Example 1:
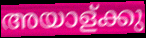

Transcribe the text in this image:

അയാള്ക്കു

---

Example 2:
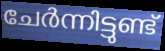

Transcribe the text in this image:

ചേർന്നിട്ടുണ്ട്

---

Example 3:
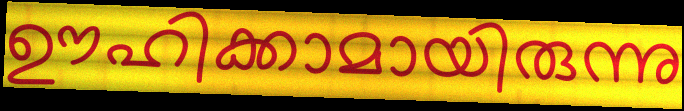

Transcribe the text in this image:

ഊഹിക്കാമായിരുന്നു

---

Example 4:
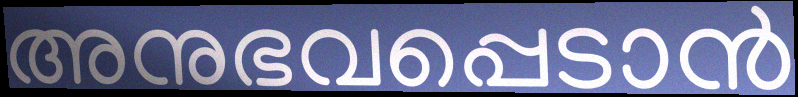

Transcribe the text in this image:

അനുഭവപ്പെടാൻ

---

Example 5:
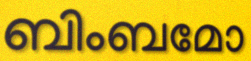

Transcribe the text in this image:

ബിംബമോ